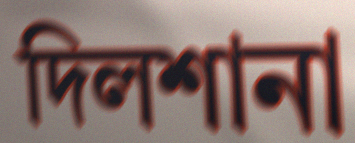
দিলশানা